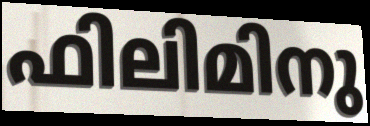
ഫിലിമിനു